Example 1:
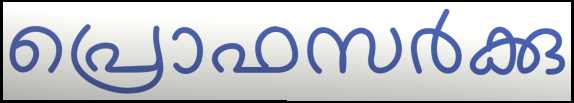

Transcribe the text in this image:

പ്രൊഫസർക്കു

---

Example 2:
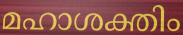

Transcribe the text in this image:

മഹാശക്തിം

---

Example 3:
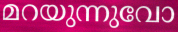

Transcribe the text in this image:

മറയുന്നുവോ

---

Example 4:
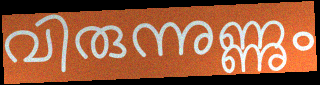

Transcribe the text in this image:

വിരുന്നുണ്ണും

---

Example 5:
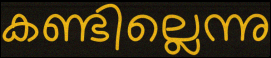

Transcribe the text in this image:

കണ്ടില്ലെന്നു